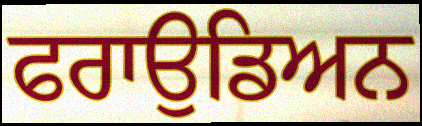
ਫਰਾਉਡਿਅਨ